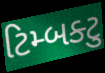
ટિમ્બક્ટુ